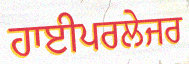
ਹਾਈਪਰਲੇਜਰ